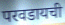
परवडायची